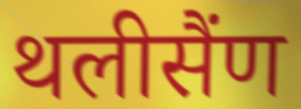
थलीसैंण